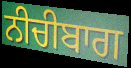
ਨੀਚੀਬਾਗ